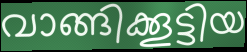
വാങ്ങിക്കൂട്ടിയ